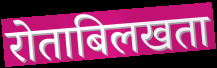
रोताबिलखता